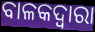
ବାଳକଦ୍ୱାରା